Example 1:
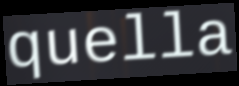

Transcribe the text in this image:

quella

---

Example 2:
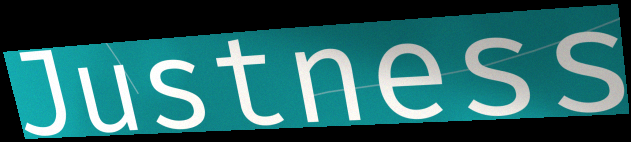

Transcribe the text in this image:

Justness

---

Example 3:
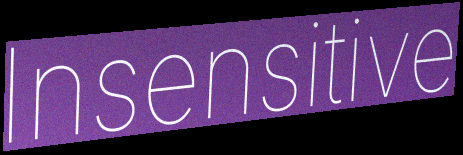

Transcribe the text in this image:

Insensitive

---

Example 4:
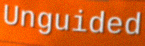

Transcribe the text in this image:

Unguided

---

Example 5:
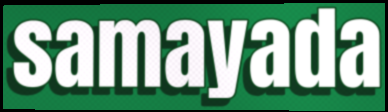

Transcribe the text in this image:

samayada